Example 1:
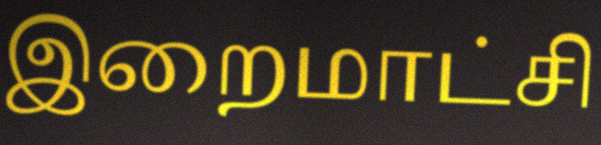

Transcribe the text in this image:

இறைமாட்சி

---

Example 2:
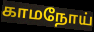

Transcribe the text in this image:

காமநோய்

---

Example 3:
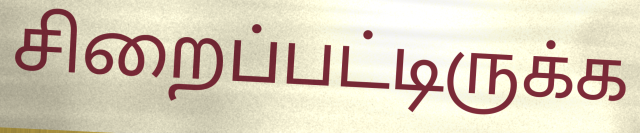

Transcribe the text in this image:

சிறைப்பட்டிருக்க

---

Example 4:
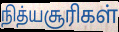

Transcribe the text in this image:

நித்யசூரிகள்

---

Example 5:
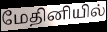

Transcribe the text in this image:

மேதினியில்